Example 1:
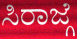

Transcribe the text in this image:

ಸಿರಾಜ್ಗೆ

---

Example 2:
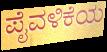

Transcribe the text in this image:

ಪೈವಳಿಕೆಯ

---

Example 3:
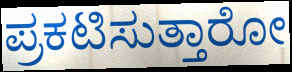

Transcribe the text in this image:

ಪ್ರಕಟಿಸುತ್ತಾರೋ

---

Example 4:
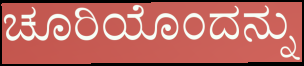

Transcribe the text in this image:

ಚೂರಿಯೊಂದನ್ನು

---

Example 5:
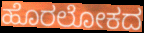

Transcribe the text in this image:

ಹೊರಲೋಕದ